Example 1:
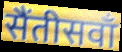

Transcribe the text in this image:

सैंतीसवाँ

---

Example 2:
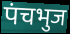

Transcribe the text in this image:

पंचभुज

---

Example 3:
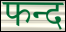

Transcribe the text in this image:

फन्द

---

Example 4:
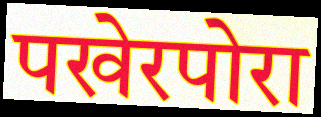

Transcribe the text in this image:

पखेरपोरा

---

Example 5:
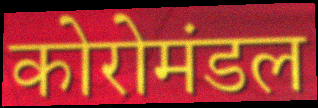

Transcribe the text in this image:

कोरोमंडल